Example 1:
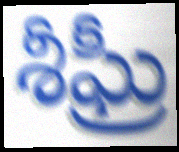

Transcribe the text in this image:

శీఘ్రీ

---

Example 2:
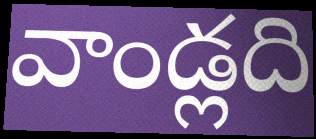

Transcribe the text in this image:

వాండ్లది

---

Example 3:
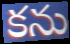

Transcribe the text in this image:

కను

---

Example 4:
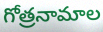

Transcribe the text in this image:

గోత్రనామాల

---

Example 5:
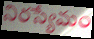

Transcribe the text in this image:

నిరస్యేమం